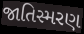
જાતિસ્મરણ